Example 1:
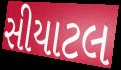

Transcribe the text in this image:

સીયાટલ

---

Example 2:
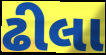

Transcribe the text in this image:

ઢીલા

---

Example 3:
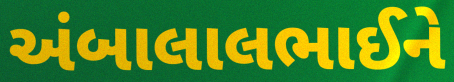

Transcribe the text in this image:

અંબાલાલભાઈને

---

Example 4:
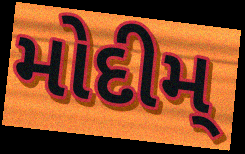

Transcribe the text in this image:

મોદીમ્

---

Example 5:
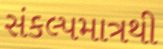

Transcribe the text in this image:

સંકલ્પમાત્રથી